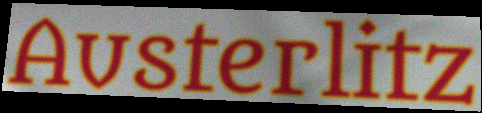
Austerlitz